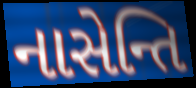
નાસેન્તિ